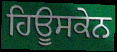
ਹਿਊਸਕੇਨ